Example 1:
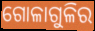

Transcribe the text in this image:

ଗୋଳାଗୁଳିର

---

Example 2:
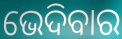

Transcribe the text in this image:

ଭେଦିବାର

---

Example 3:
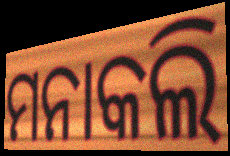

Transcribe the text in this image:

ମନାକଲି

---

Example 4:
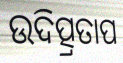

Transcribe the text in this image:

ଉଦିତ୍ପ୍ରତାପ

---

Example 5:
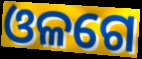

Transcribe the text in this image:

ଓଳଗେ